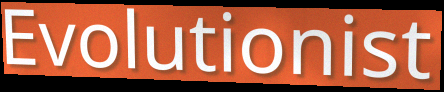
Evolutionist